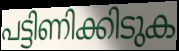
പട്ടിണിക്കിടുക